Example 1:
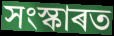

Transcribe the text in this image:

সংস্কাৰত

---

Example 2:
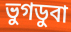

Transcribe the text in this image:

ভুগডুবা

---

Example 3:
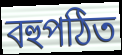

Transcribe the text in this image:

বহুপঠিত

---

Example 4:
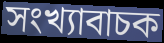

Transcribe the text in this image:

সংখ্যাবাচক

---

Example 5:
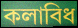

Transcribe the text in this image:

কলাবিধ